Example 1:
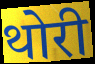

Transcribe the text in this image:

थोरी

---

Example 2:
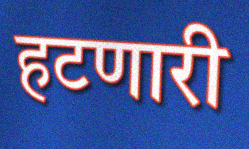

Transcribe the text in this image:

हटणारी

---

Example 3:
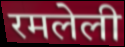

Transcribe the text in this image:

रमलेली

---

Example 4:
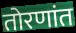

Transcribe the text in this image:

तोरणांत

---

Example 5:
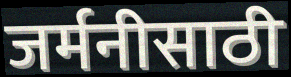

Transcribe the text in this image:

जर्मनीसाठी